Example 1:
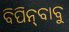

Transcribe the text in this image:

ବିପିନ୍‌ବାବୁ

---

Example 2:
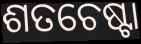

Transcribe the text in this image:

ଶତଚେଷ୍ଟା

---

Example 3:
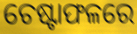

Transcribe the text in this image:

ଚେଷ୍ଟାଫଳରେ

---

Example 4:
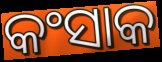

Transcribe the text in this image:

କଂସାକ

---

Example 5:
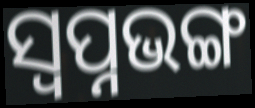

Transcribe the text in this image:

ସ୍ୱପ୍ନଭଙ୍ଗ